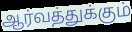
ஆர்வத்துக்கும்